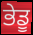
ਭੇਡੂ